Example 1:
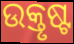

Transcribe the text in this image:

ଉକ୍ତୃଷ୍ଟ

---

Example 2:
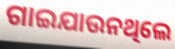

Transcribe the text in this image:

ଗାଇଯାଉନଥିଲେ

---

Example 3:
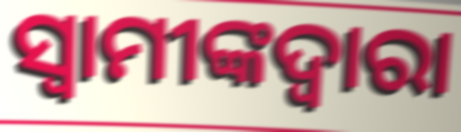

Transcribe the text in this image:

ସ୍ୱାମୀଙ୍କଦ୍ୱାରା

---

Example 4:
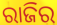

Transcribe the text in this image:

ରାଜିର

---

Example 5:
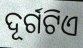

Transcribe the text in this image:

ଦୂର୍ଗଟିଏ